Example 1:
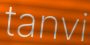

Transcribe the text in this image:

tanvi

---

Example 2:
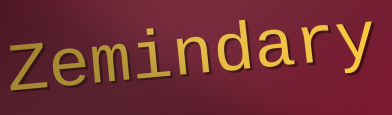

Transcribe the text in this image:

Zemindary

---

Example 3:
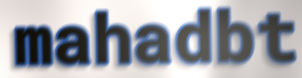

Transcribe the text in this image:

mahadbt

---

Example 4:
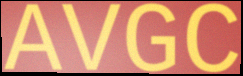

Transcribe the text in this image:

AVGC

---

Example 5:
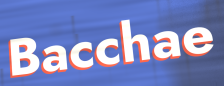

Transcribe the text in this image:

Bacchae